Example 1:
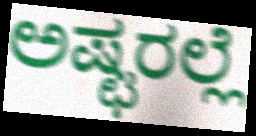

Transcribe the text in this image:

ಅಷ್ಟರಲ್ಲೆ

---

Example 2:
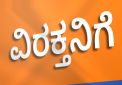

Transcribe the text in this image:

ವಿರಕ್ತನಿಗೆ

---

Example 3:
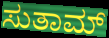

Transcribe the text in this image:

ಸುತಾಮ್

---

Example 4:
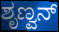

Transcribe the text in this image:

ಶೃಣ್ವನ್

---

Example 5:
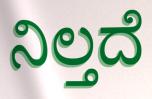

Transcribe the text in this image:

ನಿಲ್ತದೆ